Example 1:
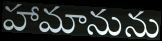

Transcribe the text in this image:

హామానును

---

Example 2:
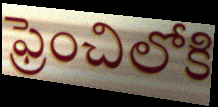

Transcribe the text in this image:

ఫ్రెంచిలోకి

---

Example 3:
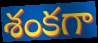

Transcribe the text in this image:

శంకగా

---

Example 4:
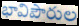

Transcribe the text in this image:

భావిపౌరుల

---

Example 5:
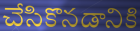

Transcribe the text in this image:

చేసికొనడానికి